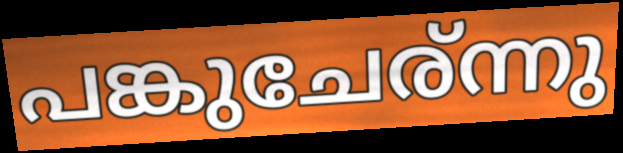
പങ്കുചേര്ന്നു